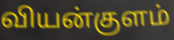
வியன்குளம்